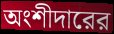
অংশীদারের